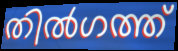
തിൽഗത്ത്